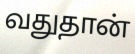
வதுதான்